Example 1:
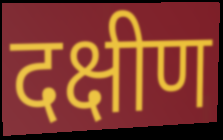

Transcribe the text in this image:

दक्षीण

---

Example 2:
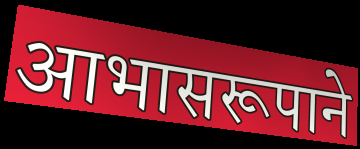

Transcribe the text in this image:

आभासरूपाने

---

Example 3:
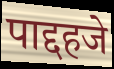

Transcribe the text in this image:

पाद्दहजे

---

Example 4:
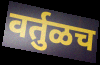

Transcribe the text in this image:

वर्तुळच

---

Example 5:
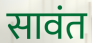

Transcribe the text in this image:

सावंत